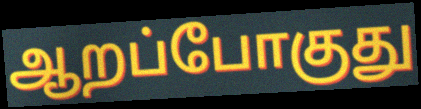
ஆறப்போகுது